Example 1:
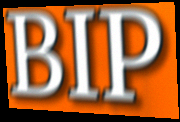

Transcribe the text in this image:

BIP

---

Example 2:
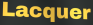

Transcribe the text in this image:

Lacquer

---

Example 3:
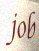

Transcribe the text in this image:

job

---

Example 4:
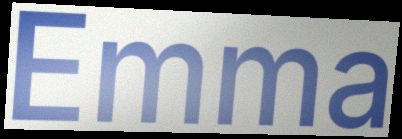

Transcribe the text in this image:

Emma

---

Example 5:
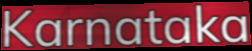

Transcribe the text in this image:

Karnataka